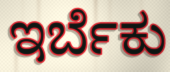
ಇರ್ಬೆಕು